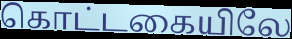
கொட்டகையிலே